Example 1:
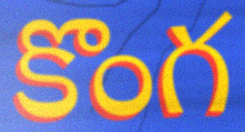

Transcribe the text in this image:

కొంగ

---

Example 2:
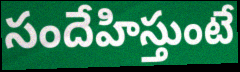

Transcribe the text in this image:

సందేహిస్తుంటే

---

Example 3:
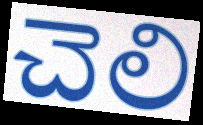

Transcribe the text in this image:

చెలి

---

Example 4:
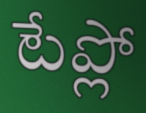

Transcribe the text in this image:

టేప్లో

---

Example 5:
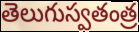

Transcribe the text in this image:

తెలుగుస్వతంత్ర